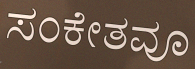
ಸಂಕೇತವೂ